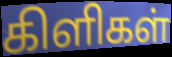
கிளிகள்